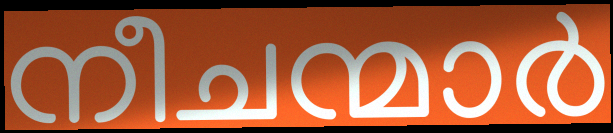
നീചന്മാർ